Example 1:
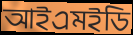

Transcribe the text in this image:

আইএমইডি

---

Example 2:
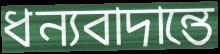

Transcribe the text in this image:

ধন্যবাদান্তে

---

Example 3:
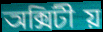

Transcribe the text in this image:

অক্সিটীয়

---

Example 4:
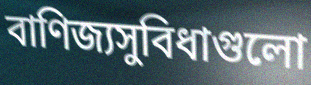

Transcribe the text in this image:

বাণিজ্যসুবিধাগুলো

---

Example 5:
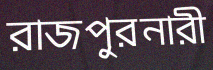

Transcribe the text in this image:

রাজপুরনারী